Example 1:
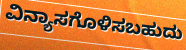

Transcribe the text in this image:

ವಿನ್ಯಾಸಗೊಳಿಸಬಹುದು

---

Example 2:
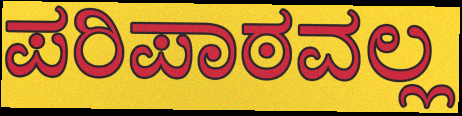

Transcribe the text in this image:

ಪರಿಪಾಠವಲ್ಲ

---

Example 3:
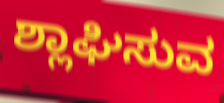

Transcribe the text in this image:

ಶ್ಲಾಘಿಸುವ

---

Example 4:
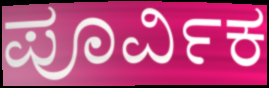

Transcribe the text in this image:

ಪೂರ್ವಿಕ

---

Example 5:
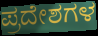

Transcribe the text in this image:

ಪ್ರದೇಶಗಳ